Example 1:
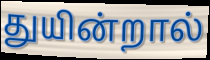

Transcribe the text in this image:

துயின்றால்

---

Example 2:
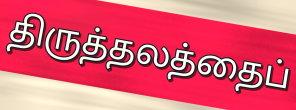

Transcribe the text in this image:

திருத்தலத்தைப்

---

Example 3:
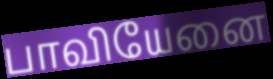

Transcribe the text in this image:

பாவியேனை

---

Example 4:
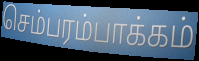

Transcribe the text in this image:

செம்பரம்பாக்கம்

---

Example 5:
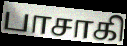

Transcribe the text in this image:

பாசாகி